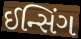
ઈન્સિંગ